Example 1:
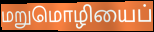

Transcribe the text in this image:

மறுமொழியைப்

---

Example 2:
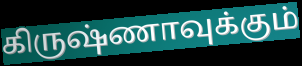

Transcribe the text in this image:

கிருஷ்ணாவுக்கும்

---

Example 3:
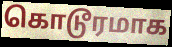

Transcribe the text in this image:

கொடூரமாக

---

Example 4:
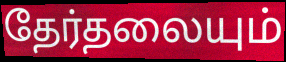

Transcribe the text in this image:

தேர்தலையும்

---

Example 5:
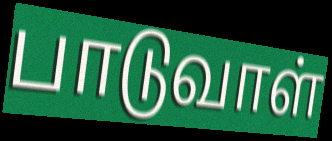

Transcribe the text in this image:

பாடுவாள்